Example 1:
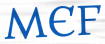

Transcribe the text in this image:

MEF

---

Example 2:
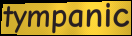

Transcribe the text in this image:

tympanic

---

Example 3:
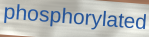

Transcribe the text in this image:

phosphorylated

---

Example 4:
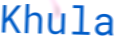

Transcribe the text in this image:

Khula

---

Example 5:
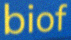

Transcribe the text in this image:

biof